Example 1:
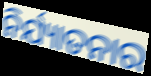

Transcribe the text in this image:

ନିର୍ଯ୍ୟାତନାର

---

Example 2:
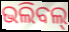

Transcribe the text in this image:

ଭଲିବଲ୍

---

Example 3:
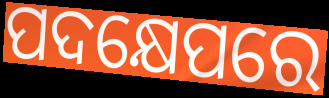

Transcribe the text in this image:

ପଦକ୍ଷେପରେ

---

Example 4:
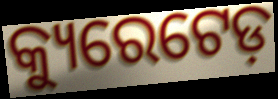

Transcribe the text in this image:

କ୍ୟୁରେଟେଡ଼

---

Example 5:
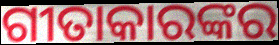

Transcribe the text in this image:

ଗୀତାକାରଙ୍କର